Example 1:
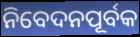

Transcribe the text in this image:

ନିବେଦନପୂର୍ବକ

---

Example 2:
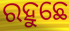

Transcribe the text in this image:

ରହୁଛେ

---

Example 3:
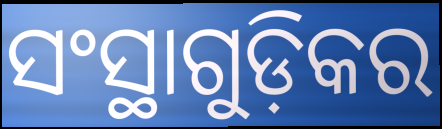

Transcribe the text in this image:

ସଂସ୍ଥାଗୁଡ଼ିକର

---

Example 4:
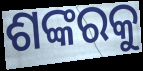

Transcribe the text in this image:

ଶଙ୍କରକୁ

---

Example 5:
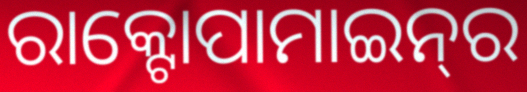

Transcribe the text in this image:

ରାକ୍ଟୋପାମାଇନ୍‌ର